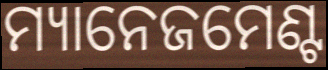
ମ୍ୟାନେଜମେଣ୍ଟ